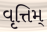
વૃત્તિમ્